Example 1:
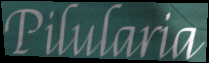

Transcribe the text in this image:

Pilularia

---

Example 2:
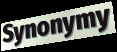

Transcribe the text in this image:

Synonymy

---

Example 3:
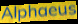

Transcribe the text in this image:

Alphaeus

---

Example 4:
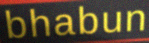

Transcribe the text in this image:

bhabun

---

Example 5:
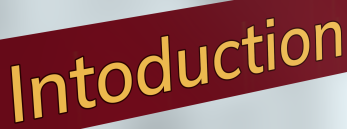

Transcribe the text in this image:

Intoduction